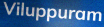
Viluppuram